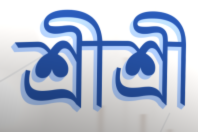
শ্রীশ্রী